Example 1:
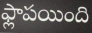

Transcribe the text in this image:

ఫ్లాపయింది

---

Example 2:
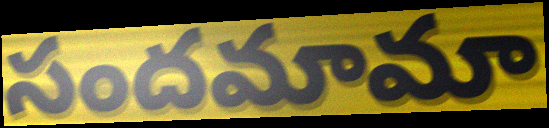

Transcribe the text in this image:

సందమామా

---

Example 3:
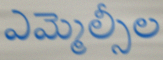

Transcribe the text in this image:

ఎమ్మెల్సీల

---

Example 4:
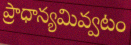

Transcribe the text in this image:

ప్రాధాన్యమివ్వటం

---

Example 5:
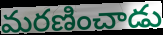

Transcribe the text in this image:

మరణించాడు